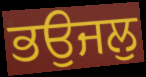
ਭਉਜਲੁ